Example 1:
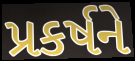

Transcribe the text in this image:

પ્રકર્ષને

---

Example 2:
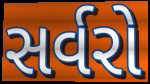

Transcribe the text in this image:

સર્વરો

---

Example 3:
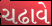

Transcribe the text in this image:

ચઢાવે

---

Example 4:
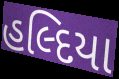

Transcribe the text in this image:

હલ્દિયા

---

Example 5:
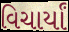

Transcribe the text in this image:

વિચાર્યાં